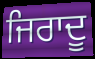
ਜਿਰਾਦੂ